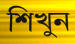
শিখুন